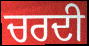
ਚਰਦੀ